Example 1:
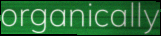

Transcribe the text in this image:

organically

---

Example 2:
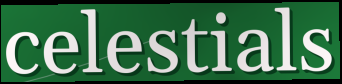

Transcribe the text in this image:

celestials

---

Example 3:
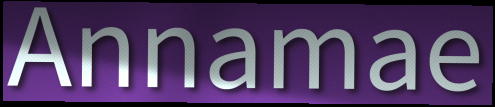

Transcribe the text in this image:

Annamae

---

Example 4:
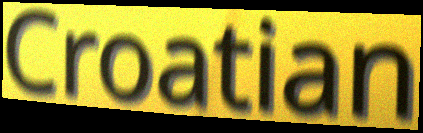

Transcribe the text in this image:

Croatian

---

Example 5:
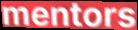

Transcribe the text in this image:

mentors